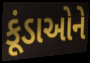
કૂંડાઓને